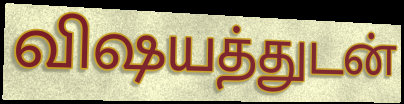
விஷயத்துடன்